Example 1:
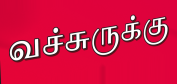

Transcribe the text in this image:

வச்சுருக்கு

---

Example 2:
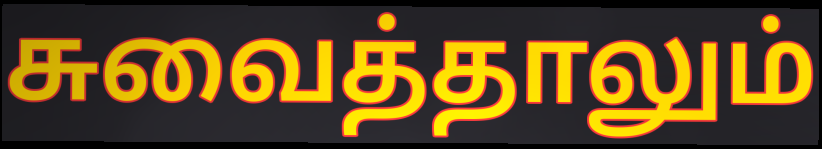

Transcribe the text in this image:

சுவைத்தாலும்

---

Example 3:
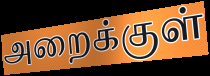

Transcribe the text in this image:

அறைக்குள்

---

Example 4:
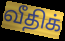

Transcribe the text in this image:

வீதிக்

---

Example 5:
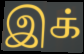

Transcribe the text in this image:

இக்